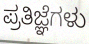
ಪ್ರತಿಜ್ಞೆಗಳು